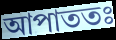
আপাততঃ